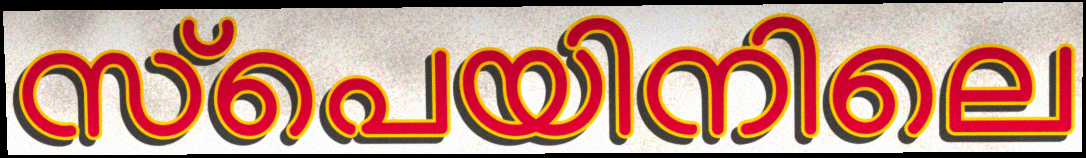
സ്‌പെയിനിലെ